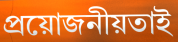
প্ৰয়োজনীয়তাই